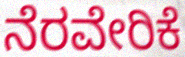
ನೆರವೇರಿಕೆ